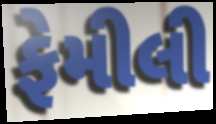
ફેમીલી